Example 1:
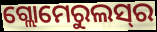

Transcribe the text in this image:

ଗ୍ଲୋମେରୁଲସ୍‌ର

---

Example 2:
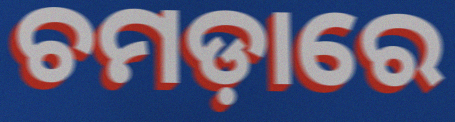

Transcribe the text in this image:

ଚମଡ଼ାରେ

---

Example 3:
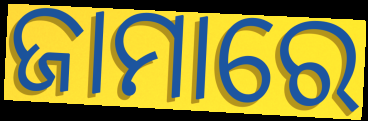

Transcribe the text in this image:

ଜାମାରେ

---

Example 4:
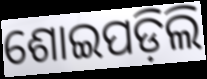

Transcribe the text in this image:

ଶୋଇପଡ଼ିଲି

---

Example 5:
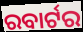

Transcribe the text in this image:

ରବାର୍ଟର